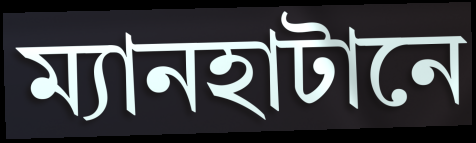
ম্যানহাটানে